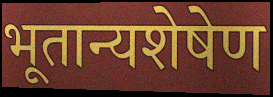
भूतान्यशेषेण